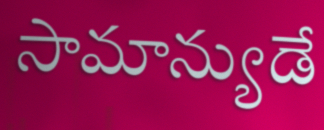
సామాన్యుడే